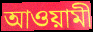
আওয়ামী